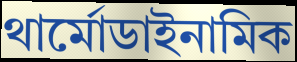
থার্মোডাইনামিক